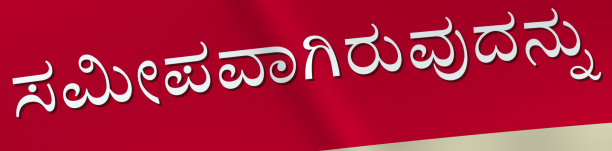
ಸಮೀಪವಾಗಿರುವುದನ್ನು